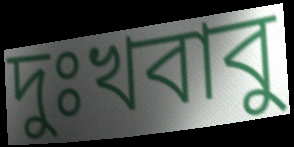
দুঃখবাবু